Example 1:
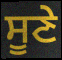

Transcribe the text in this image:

ਸੂਣੇ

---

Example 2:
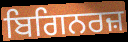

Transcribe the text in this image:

ਬਿਗਿਨਰਜ਼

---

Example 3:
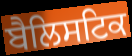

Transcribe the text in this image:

ਬੈਲਿਸਟਿਕ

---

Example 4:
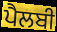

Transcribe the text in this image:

ਪੈਲਬੀ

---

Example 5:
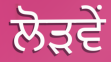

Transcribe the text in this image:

ਲੋੜਵੇਂ